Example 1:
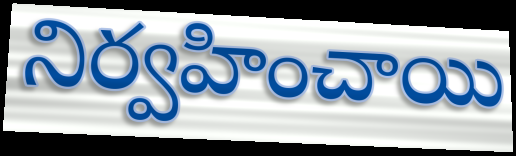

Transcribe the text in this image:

నిర్వహించాయి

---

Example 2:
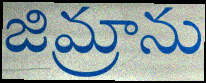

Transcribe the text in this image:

జిమ్రాను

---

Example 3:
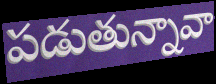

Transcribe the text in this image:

పడుతున్నావా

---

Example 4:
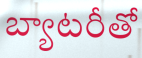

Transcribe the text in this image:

బ్యాటరీతో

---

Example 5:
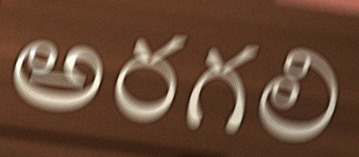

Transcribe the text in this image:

అరగలి